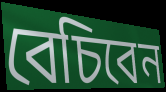
বেচিবেন